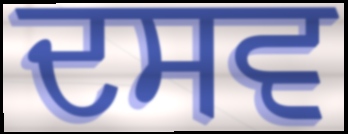
ਦਸਵ